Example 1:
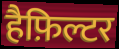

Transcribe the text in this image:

हैफ़िल्टर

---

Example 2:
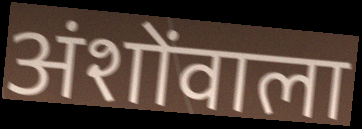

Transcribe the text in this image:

अंशोंवाला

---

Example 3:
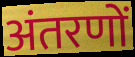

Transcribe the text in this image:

अंतरणों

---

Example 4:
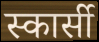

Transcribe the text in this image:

स्कार्सी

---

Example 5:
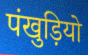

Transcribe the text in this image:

पंखुड़ियो